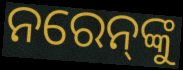
ନରେନ୍‌ଙ୍କୁ